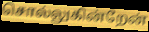
சொல்லுகின்றேன்